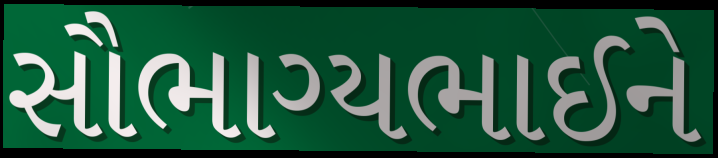
સૌભાગ્યભાઈને